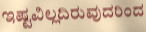
ಇಷ್ಟವಿಲ್ಲದಿರುವುದರಿಂದ